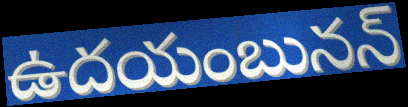
ఉదయంబునన్